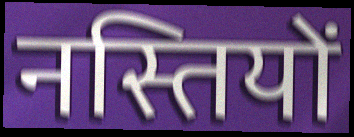
नस्तियों